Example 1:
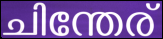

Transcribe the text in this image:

ചിന്തേര്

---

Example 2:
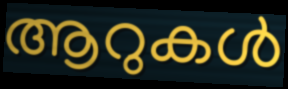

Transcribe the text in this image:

ആറുകൾ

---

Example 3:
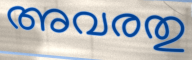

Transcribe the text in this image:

അവരതു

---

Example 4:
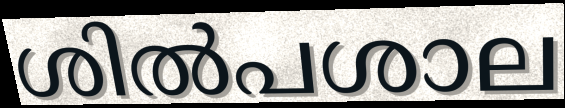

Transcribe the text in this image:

ശിൽപശാല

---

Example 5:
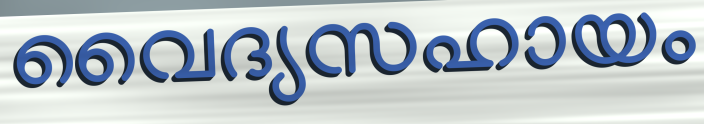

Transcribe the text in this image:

വൈദ്യസഹായം